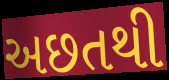
અછતથી